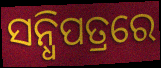
ସନ୍ଧିପତ୍ରରେ